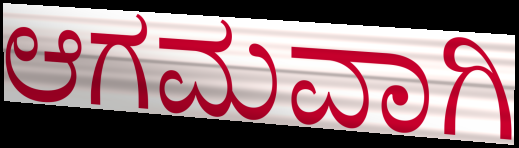
ಆಗಮವಾಗಿ